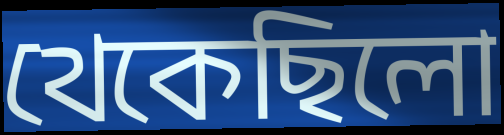
থেকেছিলো